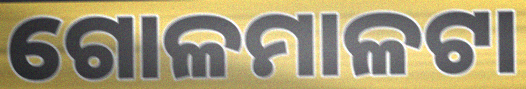
ଗୋଳମାଳଟା